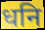
धनि